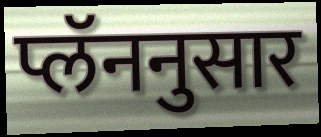
प्लॅननुसार